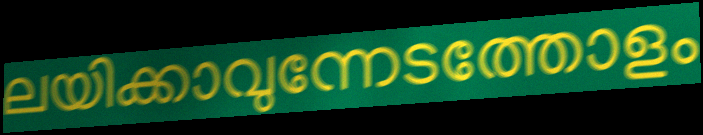
ലയിക്കാവുന്നേടത്തോളം